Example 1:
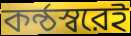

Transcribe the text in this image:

কন্ঠস্বরেই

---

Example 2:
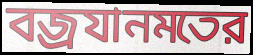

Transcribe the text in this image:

বজ্রযানমতের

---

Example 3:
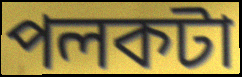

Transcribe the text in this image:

পলকটা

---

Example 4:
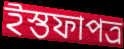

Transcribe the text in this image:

ইস্তফাপত্র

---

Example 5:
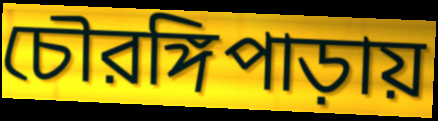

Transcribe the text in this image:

চৌরঙ্গিপাড়ায়